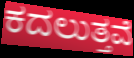
ಕದಲುತ್ತವೆ